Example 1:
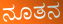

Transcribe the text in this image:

ನೂತನ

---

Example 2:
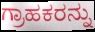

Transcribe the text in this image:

ಗ್ರಾಹಕರನ್ನು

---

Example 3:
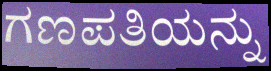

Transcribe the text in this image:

ಗಣಪತಿಯನ್ನು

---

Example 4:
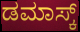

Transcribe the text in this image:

ಡಮಾಸ್ಕ್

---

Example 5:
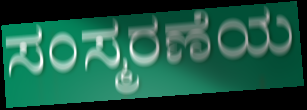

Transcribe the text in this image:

ಸಂಸ್ಮರಣೆಯ